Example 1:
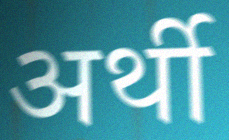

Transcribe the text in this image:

अर्थी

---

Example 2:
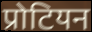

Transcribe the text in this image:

प्रोटियन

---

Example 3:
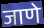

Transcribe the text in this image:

जाणे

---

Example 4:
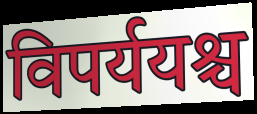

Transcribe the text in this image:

विपर्ययश्च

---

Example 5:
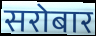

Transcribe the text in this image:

सरोबार